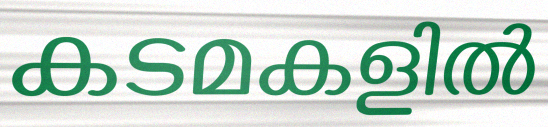
കടമകളിൽ